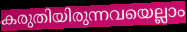
കരുതിയിരുന്നവയെല്ലാം